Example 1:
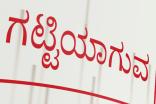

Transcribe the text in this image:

ಗಟ್ಟಿಯಾಗುವ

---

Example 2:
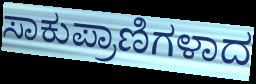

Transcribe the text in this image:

ಸಾಕುಪ್ರಾಣಿಗಳಾದ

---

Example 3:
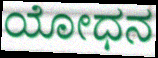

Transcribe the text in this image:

ಯೋಧನ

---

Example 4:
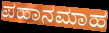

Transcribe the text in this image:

ಪಹಾನಮಾಹ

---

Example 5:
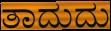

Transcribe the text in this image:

ತಾದುದು